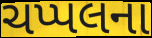
ચપ્પલના